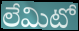
లేమిటో